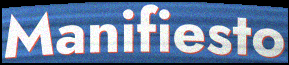
Manifiesto